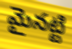
మైనట్టి